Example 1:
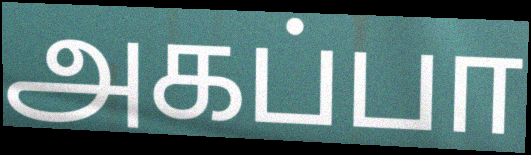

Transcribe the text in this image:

அகப்பா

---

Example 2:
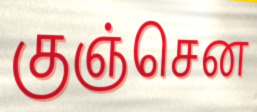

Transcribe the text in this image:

குஞ்சென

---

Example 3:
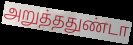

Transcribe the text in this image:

அறுத்ததுண்டா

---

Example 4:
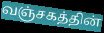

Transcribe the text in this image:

வஞ்சகத்தின்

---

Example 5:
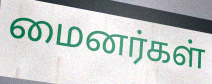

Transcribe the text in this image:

மைனர்கள்